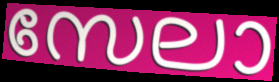
സേലാ